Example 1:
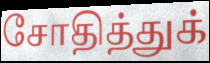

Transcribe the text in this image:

சோதித்துக்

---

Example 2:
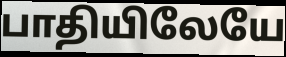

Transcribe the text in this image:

பாதியிலேயே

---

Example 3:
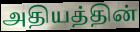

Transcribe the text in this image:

அதியத்தின்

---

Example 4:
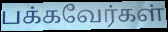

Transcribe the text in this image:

பக்கவேர்கள்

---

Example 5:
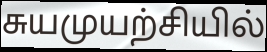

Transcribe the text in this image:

சுயமுயற்சியில்